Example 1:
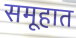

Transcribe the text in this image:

समूहात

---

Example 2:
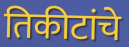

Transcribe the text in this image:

तिकीटांचे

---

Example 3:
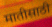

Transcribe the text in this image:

मातीसाठी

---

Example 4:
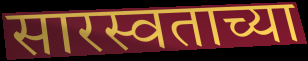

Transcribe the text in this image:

सारस्वताच्या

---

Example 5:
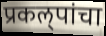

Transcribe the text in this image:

प्रकल्पांचा